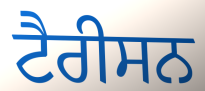
ਟੈਰੀਸਨ